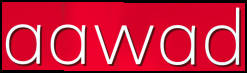
aawad